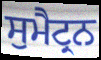
ਸੁਮੈਟ੍ਰਨ